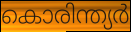
കൊരിന്ത്യർ